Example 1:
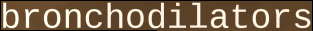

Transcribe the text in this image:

bronchodilators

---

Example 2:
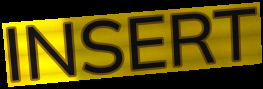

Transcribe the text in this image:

INSERT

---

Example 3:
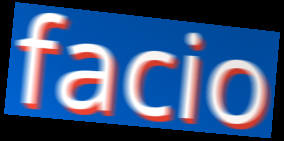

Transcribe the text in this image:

facio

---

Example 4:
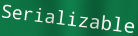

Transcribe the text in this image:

Serializable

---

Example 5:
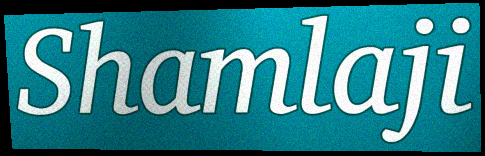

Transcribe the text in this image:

Shamlaji